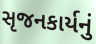
સૃજનકાર્યનું